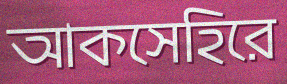
আকসেহিরে